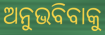
ଅନୁଭବିବାକୁ